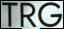
TRG